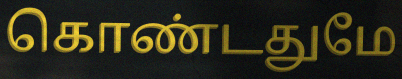
கொண்டதுமே